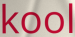
kool